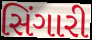
સિંગારી